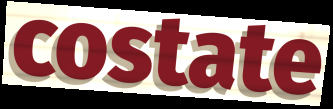
costate